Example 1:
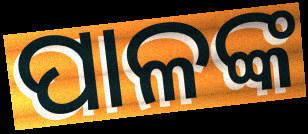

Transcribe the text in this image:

ପାଳଙ୍କ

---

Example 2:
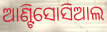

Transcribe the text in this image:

ଆଣ୍ଟିସୋସିଆଲ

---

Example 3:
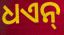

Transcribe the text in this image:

ଧଏନ୍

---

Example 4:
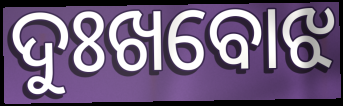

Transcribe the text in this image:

ଦୁଃଖବୋଝ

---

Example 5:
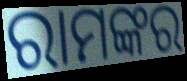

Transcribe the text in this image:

ରାମଙ୍କର